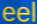
eel